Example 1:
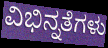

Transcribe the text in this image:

ವಿಭಿನ್ನತೆಗಳು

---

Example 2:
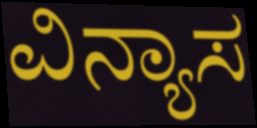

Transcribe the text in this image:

ವಿನ್ಯಾಸ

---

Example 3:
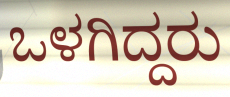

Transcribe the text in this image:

ಒಳಗಿದ್ದರು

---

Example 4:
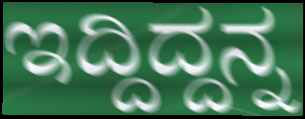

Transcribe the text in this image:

ಇದ್ದಿದ್ದನ್ನ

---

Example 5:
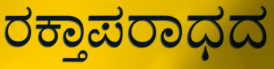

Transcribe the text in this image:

ರಕ್ತಾಪರಾಧದ